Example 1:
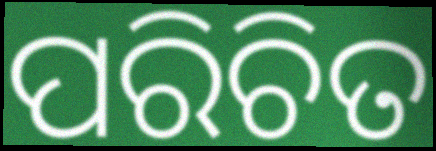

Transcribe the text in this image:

ପରିଚିତ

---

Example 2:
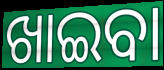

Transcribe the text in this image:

ଖାଇବା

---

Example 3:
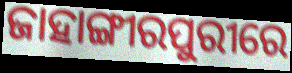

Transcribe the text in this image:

ଜାହାଙ୍ଗୀରପୁରୀରେ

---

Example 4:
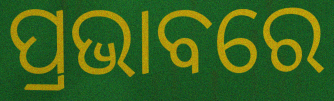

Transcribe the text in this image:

ପ୍ରଭାବରେ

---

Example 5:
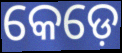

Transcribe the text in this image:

କେଡ଼େ